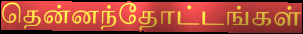
தென்னந்தோட்டங்கள்